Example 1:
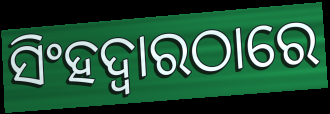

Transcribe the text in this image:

ସିଂହଦ୍ୱାରଠାରେ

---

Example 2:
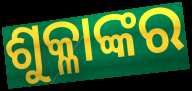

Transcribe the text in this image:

ଶୁକ୍ଳାଙ୍କର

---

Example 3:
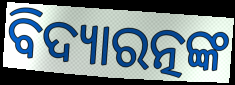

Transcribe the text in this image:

ବିଦ୍ୟାରତ୍ନଙ୍କ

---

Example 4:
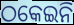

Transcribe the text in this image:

ଠକେଇନି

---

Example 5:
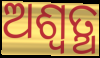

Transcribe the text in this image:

ଅଶ୍ଵତ୍ଥ